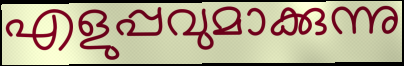
എളുപ്പവുമാക്കുന്നു